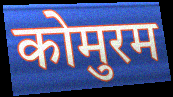
कोमुरम